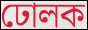
ঢোলক